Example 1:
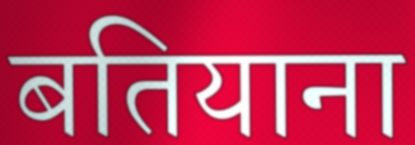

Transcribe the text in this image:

बतियाना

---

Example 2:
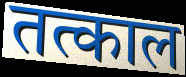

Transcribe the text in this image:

तत्काल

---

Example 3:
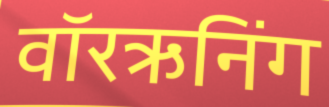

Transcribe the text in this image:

वॉरऋनिंग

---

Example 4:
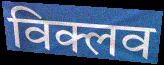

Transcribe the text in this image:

विक्लव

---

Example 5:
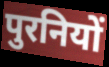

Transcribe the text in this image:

पुरनियों